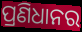
ପ୍ରଣିଧାନର